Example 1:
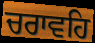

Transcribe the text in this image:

ਚਰਾਵਹਿ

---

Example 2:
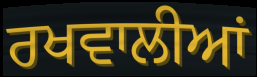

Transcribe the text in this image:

ਰਖਵਾਲੀਆਂ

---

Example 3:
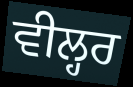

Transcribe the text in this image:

ਵੀਲ੍ਹਰ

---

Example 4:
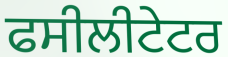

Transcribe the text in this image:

ਫਸੀਲੀਟੇਟਰ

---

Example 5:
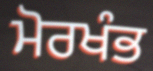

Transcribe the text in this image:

ਮੋਰਖੰਭ